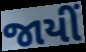
જાયીં